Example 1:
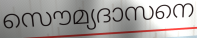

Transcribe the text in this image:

സൌമ്യദാസനെ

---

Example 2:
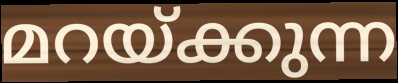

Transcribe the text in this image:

മറയ്ക്കുന്ന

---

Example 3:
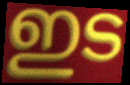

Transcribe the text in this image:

ഇട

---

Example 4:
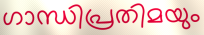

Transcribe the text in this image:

ഗാന്ധിപ്രതിമയും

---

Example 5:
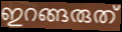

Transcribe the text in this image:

ഇറങ്ങരുത്